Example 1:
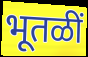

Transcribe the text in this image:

भूतळीं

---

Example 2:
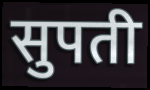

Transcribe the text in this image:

सुपती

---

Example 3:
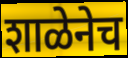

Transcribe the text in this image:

शाळेनेच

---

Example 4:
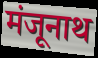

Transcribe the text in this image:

मंजूनाथ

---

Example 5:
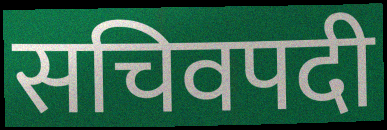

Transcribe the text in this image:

सचिवपदी